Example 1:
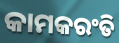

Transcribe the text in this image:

କାମକରଂତି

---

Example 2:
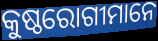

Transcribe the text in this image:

କୁଷ୍ଠରୋଗୀମାନେ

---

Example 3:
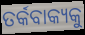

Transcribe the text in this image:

ତର୍କବାକ୍ୟକୁ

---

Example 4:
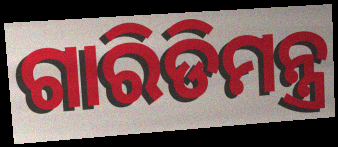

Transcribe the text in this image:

ଗାରିଡିମନ୍ତ୍ର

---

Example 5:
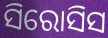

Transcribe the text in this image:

ସିରୋସିସ